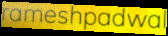
rameshpadwal